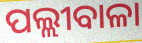
ପଲ୍ଲୀବାଳା